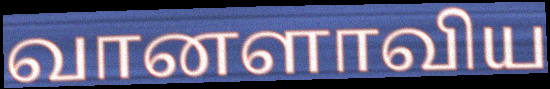
வானளாவிய